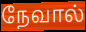
நேவால்